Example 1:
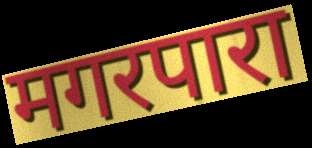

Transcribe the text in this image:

मगरपारा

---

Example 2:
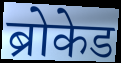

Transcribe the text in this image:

ब्रोकेड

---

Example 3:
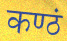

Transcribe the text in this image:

कण्ठं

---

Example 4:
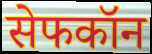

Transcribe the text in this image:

सेफकॉन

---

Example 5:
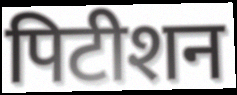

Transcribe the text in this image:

पिटीशन